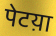
पेटय़ा